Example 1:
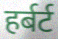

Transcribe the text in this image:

हर्बर्ट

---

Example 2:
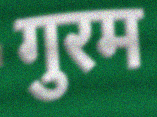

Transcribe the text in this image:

गुरम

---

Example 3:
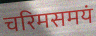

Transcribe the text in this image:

चरिमसमयं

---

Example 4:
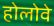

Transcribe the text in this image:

होलोवे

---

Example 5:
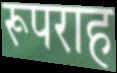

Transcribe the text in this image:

रूपराह